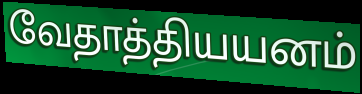
வேதாத்தியயனம்